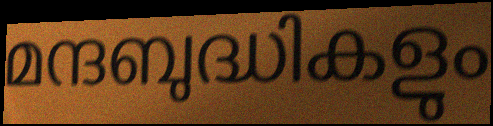
മന്ദബുദ്ധികളും